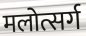
मलोत्सर्ग